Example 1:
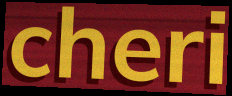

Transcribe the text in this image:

cheri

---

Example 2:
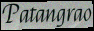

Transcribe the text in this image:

Patangrao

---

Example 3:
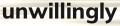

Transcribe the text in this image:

unwillingly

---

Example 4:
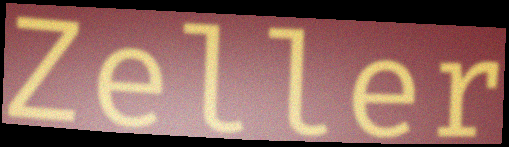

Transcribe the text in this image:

Zeller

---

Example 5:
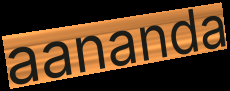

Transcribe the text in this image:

aananda